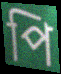
পি